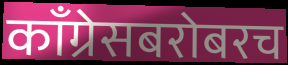
काँग्रेसबरोबरच